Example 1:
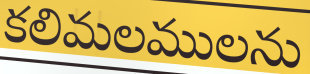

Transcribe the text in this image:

కలిమలములను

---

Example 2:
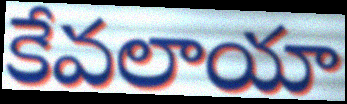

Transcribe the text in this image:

కేవలాయా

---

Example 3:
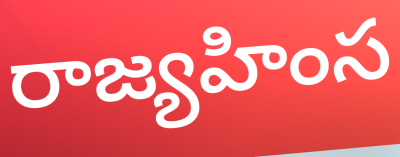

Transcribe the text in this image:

రాజ్యహింస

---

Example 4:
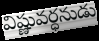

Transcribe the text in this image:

విష్ణువర్ధనుడు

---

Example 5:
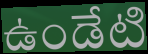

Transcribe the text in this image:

ఉండేటి